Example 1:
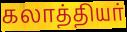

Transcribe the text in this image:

கலாத்தியர்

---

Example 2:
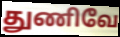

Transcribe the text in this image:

துணிவே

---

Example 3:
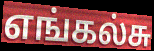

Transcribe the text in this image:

எங்கல்சு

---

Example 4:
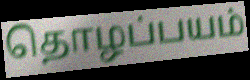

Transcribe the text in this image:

தொழப்பயம்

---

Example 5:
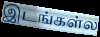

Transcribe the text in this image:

இடங்கள்ல